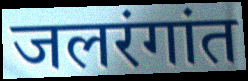
जलरंगांत